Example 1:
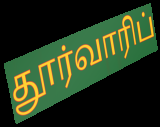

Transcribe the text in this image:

தூர்வாரிப்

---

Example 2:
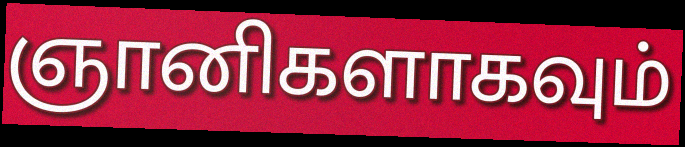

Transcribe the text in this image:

ஞானிகளாகவும்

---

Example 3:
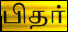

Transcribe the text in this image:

பிதர்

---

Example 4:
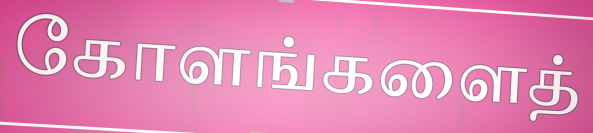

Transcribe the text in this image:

கோளங்களைத்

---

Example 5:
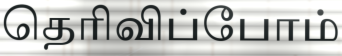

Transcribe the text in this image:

தெரிவிப்போம்